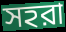
সহরা